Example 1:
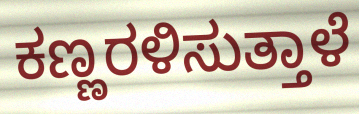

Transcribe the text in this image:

ಕಣ್ಣರಳಿಸುತ್ತಾಳೆ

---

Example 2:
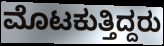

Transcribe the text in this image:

ಮೊಟಕುತ್ತಿದ್ದರು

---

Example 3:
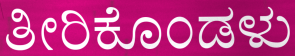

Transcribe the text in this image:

ತೀರಿಕೊಂಡಳು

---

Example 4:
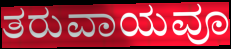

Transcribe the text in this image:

ತರುವಾಯವೂ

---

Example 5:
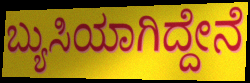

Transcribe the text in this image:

ಬ್ಯುಸಿಯಾಗಿದ್ದೇನೆ